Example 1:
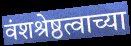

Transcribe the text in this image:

वंशश्रेष्ठत्वाच्या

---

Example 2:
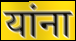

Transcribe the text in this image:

यांना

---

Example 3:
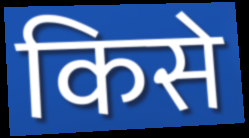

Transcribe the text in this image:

किसे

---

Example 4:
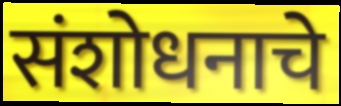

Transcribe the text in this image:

संशोधनाचे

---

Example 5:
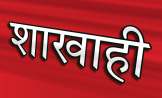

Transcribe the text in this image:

शाखाही